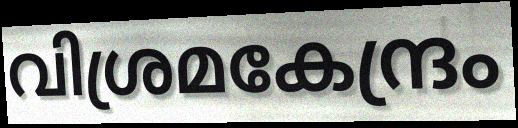
വിശ്രമകേന്ദ്രം